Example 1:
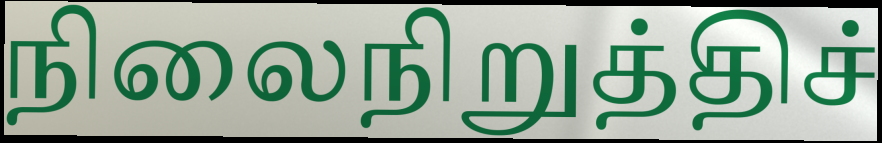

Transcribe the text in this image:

நிலைநிறுத்திச்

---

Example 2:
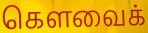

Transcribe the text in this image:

கௌவைக்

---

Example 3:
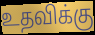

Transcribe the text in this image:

உதவிக்கு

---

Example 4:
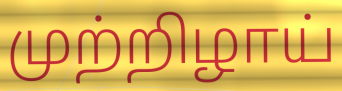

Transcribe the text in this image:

முற்றிழாய்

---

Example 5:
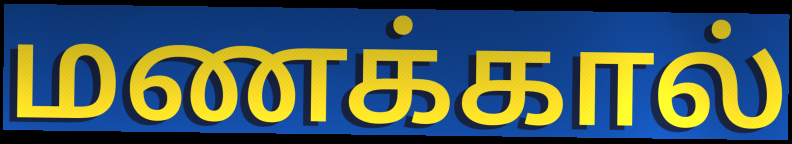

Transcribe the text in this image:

மணக்கால்